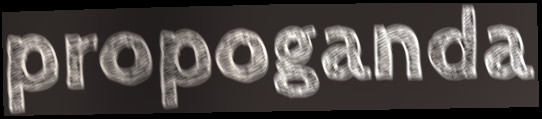
propoganda